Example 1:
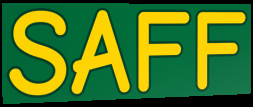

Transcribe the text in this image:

SAFF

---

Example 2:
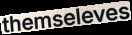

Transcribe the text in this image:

themseleves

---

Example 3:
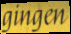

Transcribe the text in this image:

gingen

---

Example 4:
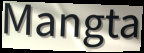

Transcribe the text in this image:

Mangta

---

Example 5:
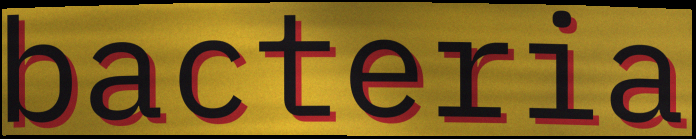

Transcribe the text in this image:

bacteria